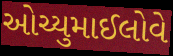
ઓચ્યુમાઈલોવે